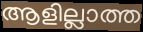
ആളില്ലാത്ത